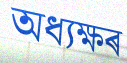
অধ্যক্ষৰ